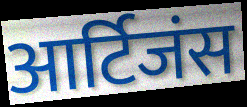
आर्टिजंस